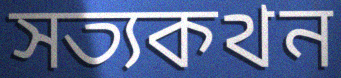
সত্যকথন